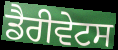
ਡੈਰੀਵੇਟਸ